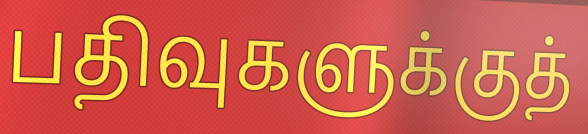
பதிவுகளுக்குத்